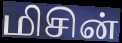
மிசின்